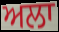
ਅਲਾ